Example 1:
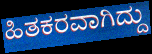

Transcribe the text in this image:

ಹಿತಕರವಾಗಿದ್ದು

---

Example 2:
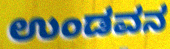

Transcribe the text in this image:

ಉಂಡವನ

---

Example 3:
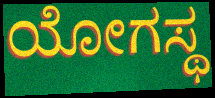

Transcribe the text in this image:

ಯೋಗಸ್ಥ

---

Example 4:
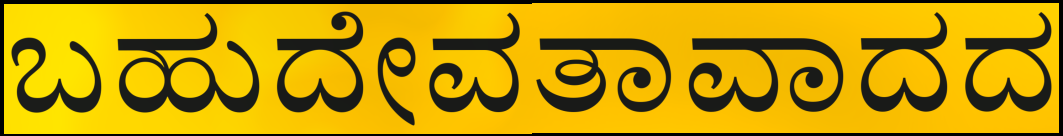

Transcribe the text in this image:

ಬಹುದೇವತಾವಾದದ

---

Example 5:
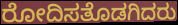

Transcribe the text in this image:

ರೋದಿಸತೊಡಗಿದರು